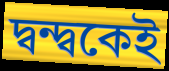
দ্বন্দ্বকেই